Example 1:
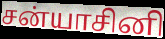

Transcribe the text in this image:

சன்யாசினி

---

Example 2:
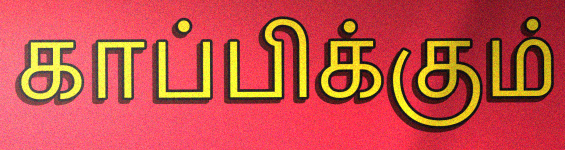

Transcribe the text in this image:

காப்பிக்கும்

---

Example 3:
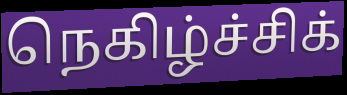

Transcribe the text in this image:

நெகிழ்ச்சிக்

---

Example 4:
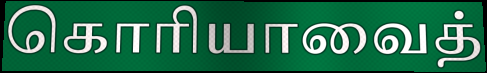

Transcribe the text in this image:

கொரியாவைத்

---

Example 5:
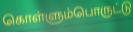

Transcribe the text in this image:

கொள்ளும்பொருட்டு